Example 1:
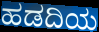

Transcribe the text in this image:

ಹಡದಿಯ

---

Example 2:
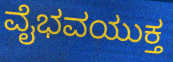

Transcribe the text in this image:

ವೈಭವಯುಕ್ತ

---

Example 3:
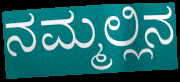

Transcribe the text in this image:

ನಮ್ಮಲ್ಲಿನ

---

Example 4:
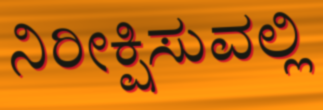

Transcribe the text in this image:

ನಿರೀಕ್ಷಿಸುವಲ್ಲಿ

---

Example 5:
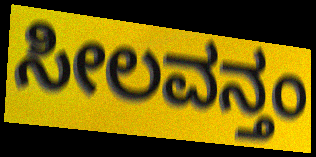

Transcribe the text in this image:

ಸೀಲವನ್ತಂ